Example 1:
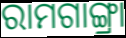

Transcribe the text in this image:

ରାମଗାଙ୍ଗ୍ରା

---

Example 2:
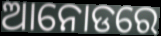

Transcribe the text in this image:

ଆନୋଡରେ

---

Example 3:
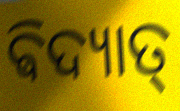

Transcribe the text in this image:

ଵିଦ୍ଯାତ୍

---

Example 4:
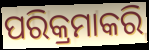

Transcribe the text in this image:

ପରିକ୍ରମାକରି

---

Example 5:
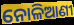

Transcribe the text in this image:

ନୋଳିଆଣୀ